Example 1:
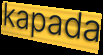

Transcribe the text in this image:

kapada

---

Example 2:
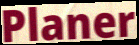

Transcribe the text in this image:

Planer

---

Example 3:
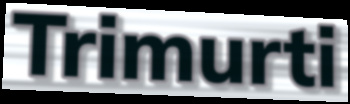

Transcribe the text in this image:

Trimurti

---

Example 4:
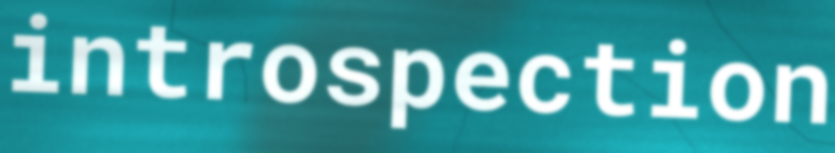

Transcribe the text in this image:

introspection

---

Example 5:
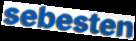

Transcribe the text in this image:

sebesten